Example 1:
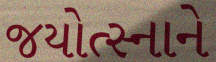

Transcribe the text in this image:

જયોત્સ્નાને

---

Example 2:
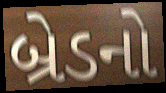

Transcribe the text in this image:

બ્રેડનો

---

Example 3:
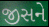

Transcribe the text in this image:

જીસને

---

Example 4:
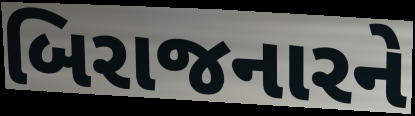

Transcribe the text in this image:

બિરાજનારને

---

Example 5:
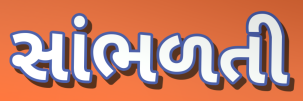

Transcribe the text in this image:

સાંભળતી